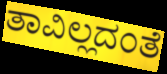
ತಾವಿಲ್ಲದಂತೆ